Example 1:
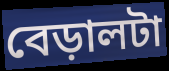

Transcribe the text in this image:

বেড়ালটা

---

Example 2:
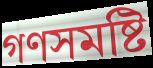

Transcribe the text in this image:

গণসমষ্টি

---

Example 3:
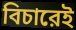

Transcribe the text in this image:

বিচারেই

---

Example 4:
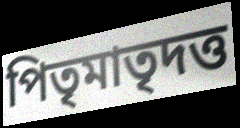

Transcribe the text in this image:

পিতৃমাতৃদত্ত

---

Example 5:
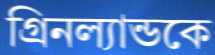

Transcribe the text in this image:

গ্রিনল্যান্ডকে